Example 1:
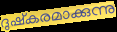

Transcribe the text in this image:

ദുഷ്കരമാക്കുന്നു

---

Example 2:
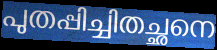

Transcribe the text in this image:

പുതപ്പിച്ചിതച്ഛനെ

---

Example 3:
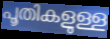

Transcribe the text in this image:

പൂതികളുള്ള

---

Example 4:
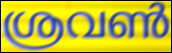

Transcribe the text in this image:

ശ്രവൺ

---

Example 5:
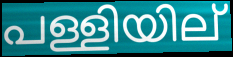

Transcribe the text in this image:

പള്ളിയില്